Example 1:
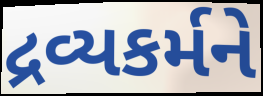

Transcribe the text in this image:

દ્રવ્યકર્મને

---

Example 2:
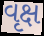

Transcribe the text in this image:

વૃક્ષ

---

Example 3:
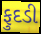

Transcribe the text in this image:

ફુદડી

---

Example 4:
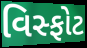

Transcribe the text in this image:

વિસ્ફોટ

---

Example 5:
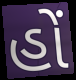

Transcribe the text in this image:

હોં